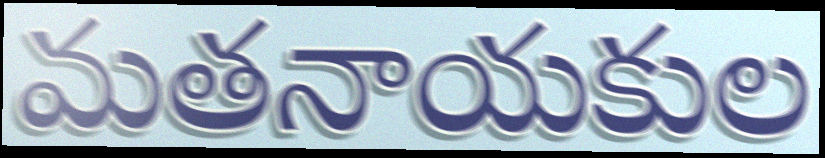
మతనాయకుల